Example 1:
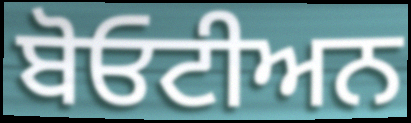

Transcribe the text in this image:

ਬੋਓਟੀਅਨ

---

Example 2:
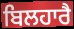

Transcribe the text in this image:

ਬਿਲਹਾਰੈ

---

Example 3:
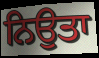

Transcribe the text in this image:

ਨਿਉਤਾ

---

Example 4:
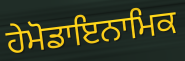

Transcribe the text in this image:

ਹੇਮੋਡਾਇਨਾਮਿਕ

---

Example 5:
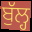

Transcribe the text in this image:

ਬੁੱਲ੍ਹ